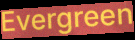
Evergreen